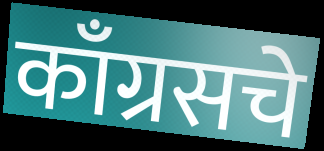
काँग्रसचे